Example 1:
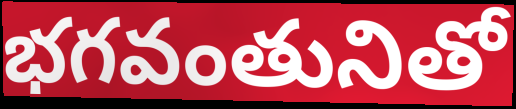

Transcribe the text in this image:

భగవంతునితో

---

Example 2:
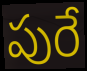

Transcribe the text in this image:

పురే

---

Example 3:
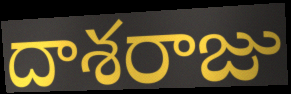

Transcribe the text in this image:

దాశరాజు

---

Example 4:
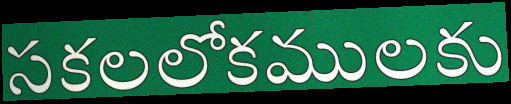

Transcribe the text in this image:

సకలలోకములకు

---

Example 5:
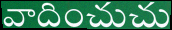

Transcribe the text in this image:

వాదించుచు